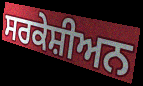
ਸਰਕੇਸ਼ੀਅਨ